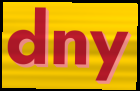
dny